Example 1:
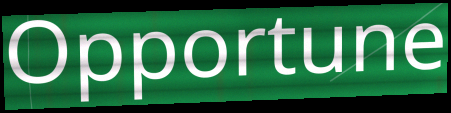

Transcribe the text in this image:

Opportune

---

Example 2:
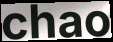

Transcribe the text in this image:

chao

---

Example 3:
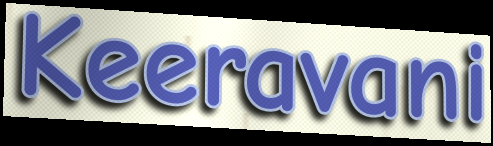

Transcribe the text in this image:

Keeravani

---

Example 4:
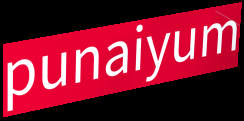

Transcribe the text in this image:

punaiyum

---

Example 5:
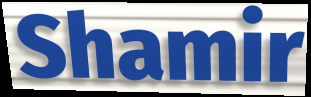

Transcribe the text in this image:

Shamir